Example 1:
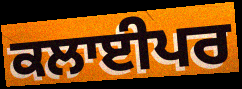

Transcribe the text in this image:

ਕਲਾਈਪਰ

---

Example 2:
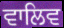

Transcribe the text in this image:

ਵਾਲਿਵ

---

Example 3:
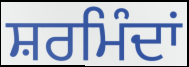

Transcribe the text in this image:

ਸ਼ਰਮਿੰਦਾਂ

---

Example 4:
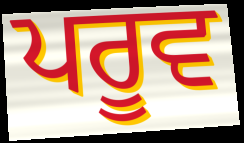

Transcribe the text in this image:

ਪਰੂਵ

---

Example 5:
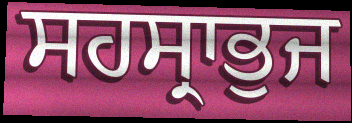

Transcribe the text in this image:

ਸਹਸ੍ਰਾਭੁਜ